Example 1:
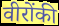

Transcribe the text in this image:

वीरोंकी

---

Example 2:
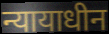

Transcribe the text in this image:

न्यायाधीन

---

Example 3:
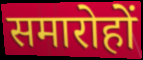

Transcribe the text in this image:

समारोहों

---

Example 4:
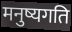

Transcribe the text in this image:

मनुष्यगति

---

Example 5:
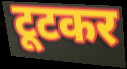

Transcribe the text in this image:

टूटकर